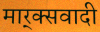
मार्क्सवादी